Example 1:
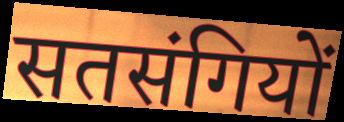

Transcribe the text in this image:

सतसंगियों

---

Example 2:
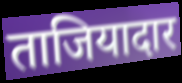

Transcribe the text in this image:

ताजियादार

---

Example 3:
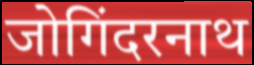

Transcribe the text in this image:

जोगिंदरनाथ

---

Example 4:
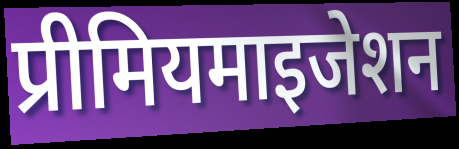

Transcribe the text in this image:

प्रीमियमाइजेशन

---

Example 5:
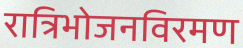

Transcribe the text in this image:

रात्रिभोजनविरमण